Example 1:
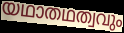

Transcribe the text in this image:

യഥാതഥത്വവും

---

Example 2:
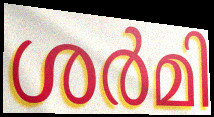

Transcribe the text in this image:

ശർമി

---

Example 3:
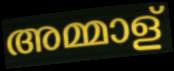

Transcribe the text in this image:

അമ്മാള്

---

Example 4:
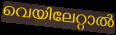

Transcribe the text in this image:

വെയിലേറ്റാൽ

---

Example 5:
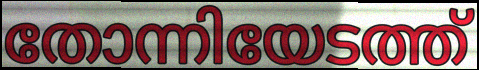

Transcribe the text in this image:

തോന്നിയേടത്ത്